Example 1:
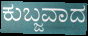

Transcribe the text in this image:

ಕುಬ್ಜವಾದ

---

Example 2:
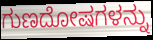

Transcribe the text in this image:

ಗುಣದೋಷಗಳನ್ನು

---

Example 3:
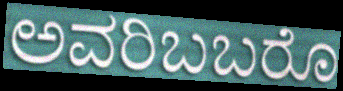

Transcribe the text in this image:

ಅವರಿಬಬರೊ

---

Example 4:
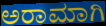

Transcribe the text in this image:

ಅರಾಮಾಗಿ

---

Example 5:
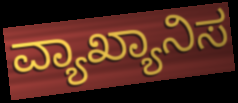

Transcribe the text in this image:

ವ್ಯಾಖ್ಯಾನಿಸ